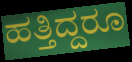
ಹತ್ತಿದ್ದರೂ